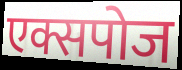
एक्सपोज